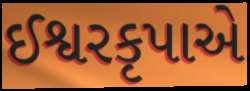
ઈશ્વરકૃપાએ